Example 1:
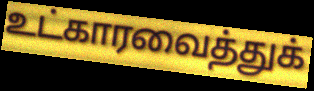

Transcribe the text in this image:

உட்காரவைத்துக்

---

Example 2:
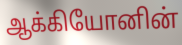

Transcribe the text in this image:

ஆக்கியோனின்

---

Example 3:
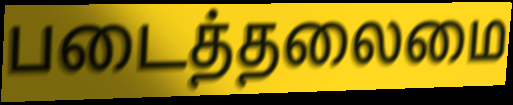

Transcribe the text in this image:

படைத்தலைமை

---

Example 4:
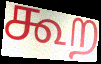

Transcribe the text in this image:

கூற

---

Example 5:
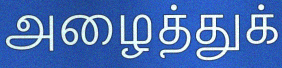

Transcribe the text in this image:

அழைத்துக்